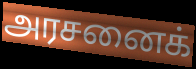
அரசனைக்